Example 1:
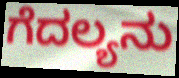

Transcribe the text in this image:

ಗೆದಲ್ಯನು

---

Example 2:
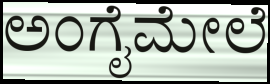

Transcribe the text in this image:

ಅಂಗೈಮೇಲೆ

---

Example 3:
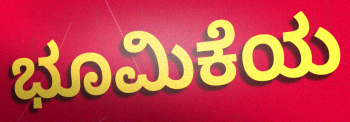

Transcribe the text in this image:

ಭೂಮಿಕೆಯ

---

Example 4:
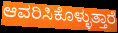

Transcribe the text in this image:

ಆವರಿಸಿಕೊಳ್ಳುತ್ತಾರೆ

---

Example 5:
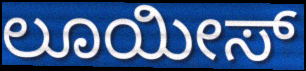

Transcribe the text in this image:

ಲೂಯೀಸ್